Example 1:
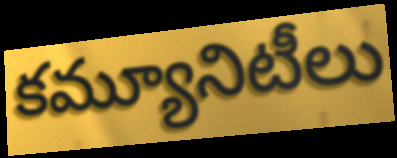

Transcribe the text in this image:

కమ్యూనిటీలు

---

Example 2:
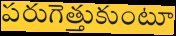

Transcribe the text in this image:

పరుగెత్తుకుంటూ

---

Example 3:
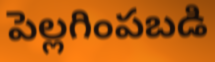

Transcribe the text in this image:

పెల్లగింపబడి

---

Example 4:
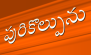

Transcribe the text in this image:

పురికొల్పును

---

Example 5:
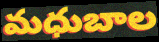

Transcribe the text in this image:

మధుబాల